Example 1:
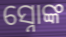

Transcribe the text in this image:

ସ୍ନୋଙ୍କ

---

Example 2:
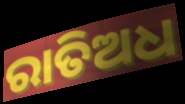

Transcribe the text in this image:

ରାତିଅଧ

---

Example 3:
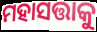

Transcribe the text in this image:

ମହାସତ୍ତାକୁ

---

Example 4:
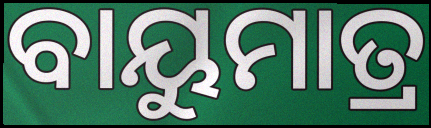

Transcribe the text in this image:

ବାୟୁମାତ୍ର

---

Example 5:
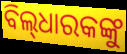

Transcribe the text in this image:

ବିଲ୍‌ଧାରକଙ୍କୁ